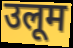
उलूम